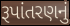
રૂપાંતરણનું